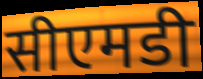
सीएमडी